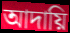
আদায়ি